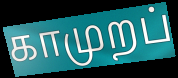
காமுறப்